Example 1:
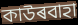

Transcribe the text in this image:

কাউৰবাহা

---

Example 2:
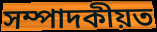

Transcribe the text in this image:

সম্পাদকীয়ত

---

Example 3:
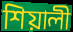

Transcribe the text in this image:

শিয়ালী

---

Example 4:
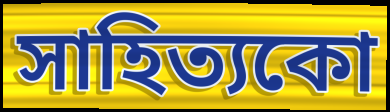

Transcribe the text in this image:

সাহিত্যকো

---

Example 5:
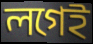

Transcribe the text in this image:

লগেই